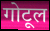
गोटूल